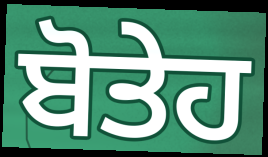
ਬੋਤੇਹ